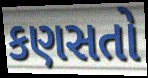
કણસતો